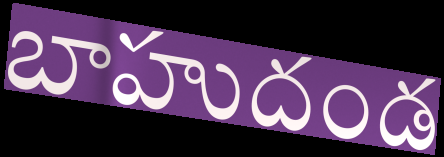
బాహుదండ